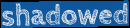
shadowed